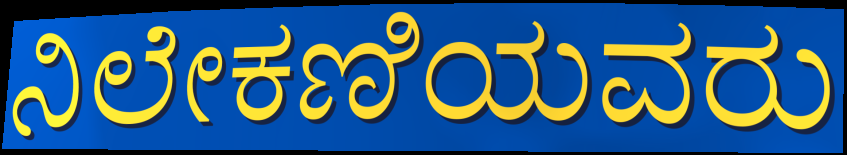
ನಿಲೇಕಣಿಯವರು